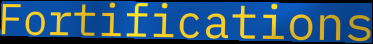
Fortifications